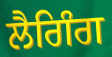
ਲੈਗਿੰਗ